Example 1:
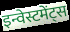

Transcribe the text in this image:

इन्वेस्टमेंट्स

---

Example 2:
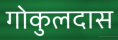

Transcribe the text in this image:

गोकुलदास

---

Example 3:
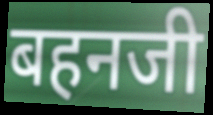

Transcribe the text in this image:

बहनजी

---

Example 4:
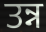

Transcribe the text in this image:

उन्न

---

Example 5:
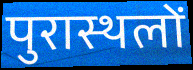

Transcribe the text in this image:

पुरास्थलों